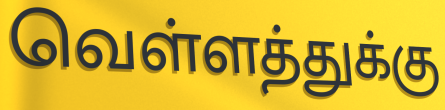
வெள்ளத்துக்கு